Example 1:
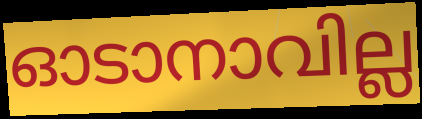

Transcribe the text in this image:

ഓടാനാവില്ല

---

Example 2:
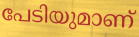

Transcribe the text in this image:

പേടിയുമാണ്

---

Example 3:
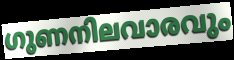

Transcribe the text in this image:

ഗുണനിലവാരവും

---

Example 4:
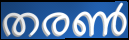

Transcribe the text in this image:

തരൺ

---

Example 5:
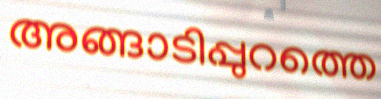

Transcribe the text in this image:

അങ്ങാടിപ്പുറത്തെ